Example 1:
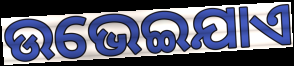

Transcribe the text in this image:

ଉଭେଇଯାଏ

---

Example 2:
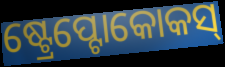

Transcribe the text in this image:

ଷ୍ଟ୍ରେପ୍ଟୋକୋକସ୍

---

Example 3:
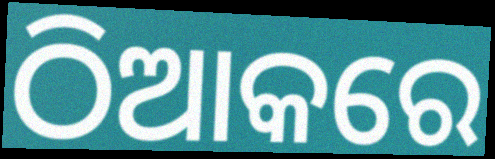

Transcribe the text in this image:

ଠିଆକରେ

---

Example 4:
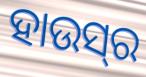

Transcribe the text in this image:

ହାଉସ୍‌ର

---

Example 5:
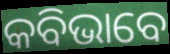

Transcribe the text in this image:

କବିଭାବେ